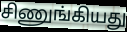
சிணுங்கியது